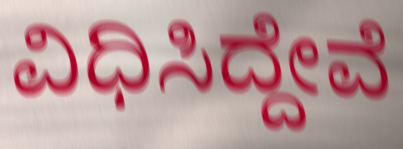
ವಿಧಿಸಿದ್ದೇವೆ